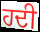
ਹਦੀ